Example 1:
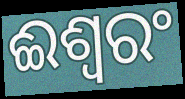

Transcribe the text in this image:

ଈଶ୍ଵରଂ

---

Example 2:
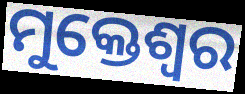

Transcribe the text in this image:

ମୁକ୍ତେଶ୍ଵର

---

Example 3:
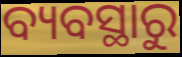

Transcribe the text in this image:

ବ୍ୟବସ୍ଥାରୁ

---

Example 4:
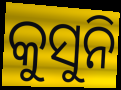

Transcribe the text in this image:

କୁସୁନି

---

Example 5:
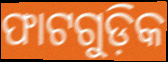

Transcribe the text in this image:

ଫାଟଗୁଡ଼ିକ